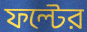
ফল্টের